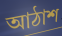
আঠাশ